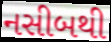
નસીબથી